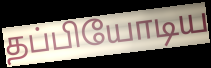
தப்பியோடிய